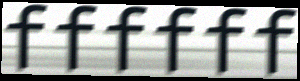
ffffff